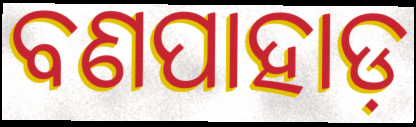
ବଣପାହାଡ଼